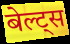
बेल्ट्स